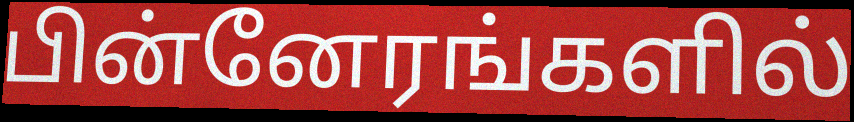
பின்னேரங்களில்